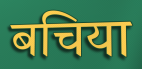
बचिया